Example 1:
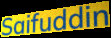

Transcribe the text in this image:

Saifuddin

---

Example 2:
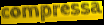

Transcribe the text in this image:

compressa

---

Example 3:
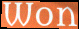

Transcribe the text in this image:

Won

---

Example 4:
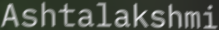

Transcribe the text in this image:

Ashtalakshmi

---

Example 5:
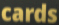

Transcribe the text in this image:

cards